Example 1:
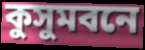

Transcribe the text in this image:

কুসুমবনে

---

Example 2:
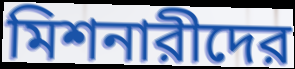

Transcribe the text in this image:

মিশনারীদের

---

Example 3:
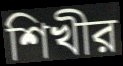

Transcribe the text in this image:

শিখীর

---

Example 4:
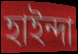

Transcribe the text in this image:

হাইন্দা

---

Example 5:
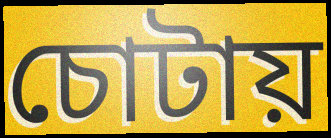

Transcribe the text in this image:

চোটায়